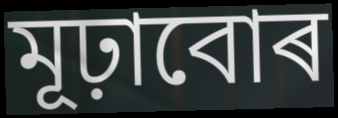
মূঢ়াবোৰ